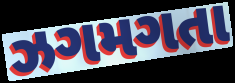
ઝગમગતા